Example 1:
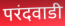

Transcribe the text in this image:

परंदवाडी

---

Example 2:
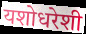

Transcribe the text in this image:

यशोधरेशी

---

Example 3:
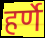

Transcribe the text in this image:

हर्णे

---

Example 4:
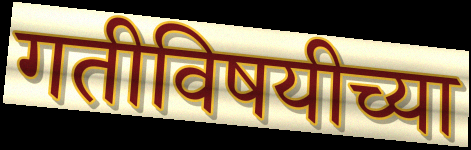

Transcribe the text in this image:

गतीविषयीच्या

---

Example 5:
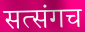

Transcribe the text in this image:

सत्संगच